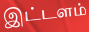
இட்டளம்